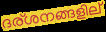
ദര്ശനങ്ങളില്